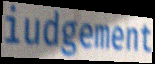
iudgement